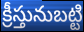
క్రీస్తునుబట్టి